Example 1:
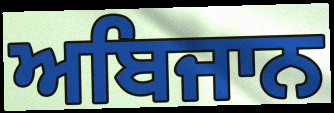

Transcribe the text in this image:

ਅਬਿਜਾਨ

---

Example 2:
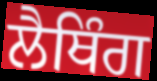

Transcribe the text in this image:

ਲੈਥਿੰਗ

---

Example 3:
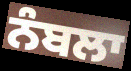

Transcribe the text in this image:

ਨੰਬਲਾ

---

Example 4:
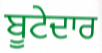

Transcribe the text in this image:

ਬੂਟੇਦਾਰ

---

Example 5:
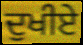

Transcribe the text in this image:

ਦੁਖੀਏ